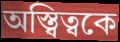
অস্ত্বিত্বকে